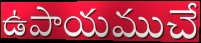
ఉపాయముచే